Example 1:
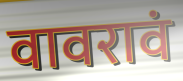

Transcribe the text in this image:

वावरावं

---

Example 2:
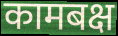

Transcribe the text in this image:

कामबक्ष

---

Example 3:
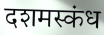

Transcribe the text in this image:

दशमस्कंध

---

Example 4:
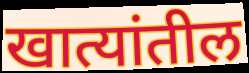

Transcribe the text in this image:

खात्यांतील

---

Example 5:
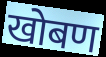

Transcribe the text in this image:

खोबण